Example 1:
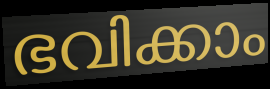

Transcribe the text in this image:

ഭവിക്കാം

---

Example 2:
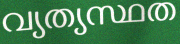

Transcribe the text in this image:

വ്യത്യസ്ഥത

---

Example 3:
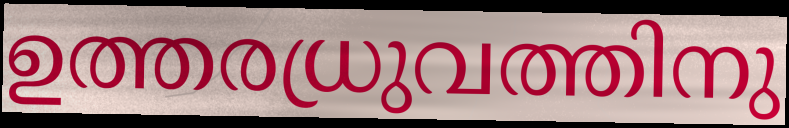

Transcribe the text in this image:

ഉത്തരധ്രുവത്തിനു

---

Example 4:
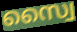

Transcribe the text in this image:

സ്വൈ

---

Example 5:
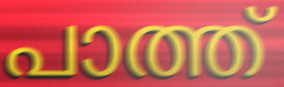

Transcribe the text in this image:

പാത്ത്